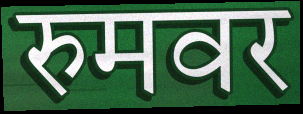
रुमवर